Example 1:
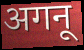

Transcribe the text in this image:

अगनू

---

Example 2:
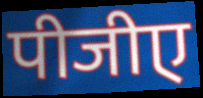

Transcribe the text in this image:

पीजीए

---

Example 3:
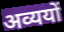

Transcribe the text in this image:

अव्ययों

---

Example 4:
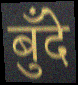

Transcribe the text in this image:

बुँदे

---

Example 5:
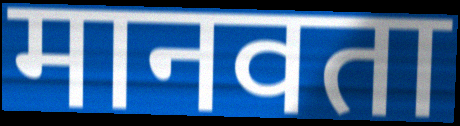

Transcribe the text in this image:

मानवता